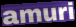
amuri